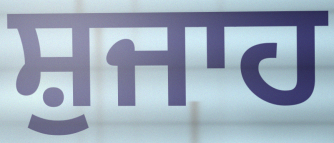
ਸ਼ੁਜਾਹ